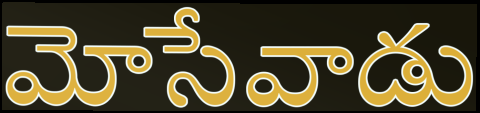
మోసేవాడు